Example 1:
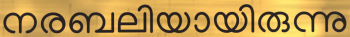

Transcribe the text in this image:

നരബലിയായിരുന്നു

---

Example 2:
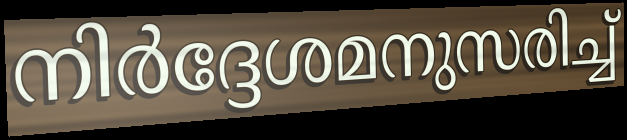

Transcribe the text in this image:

നിർദ്ദേശമനുസരിച്ച്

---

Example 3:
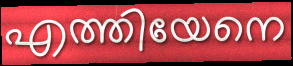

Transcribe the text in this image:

എത്തിയേനെ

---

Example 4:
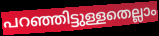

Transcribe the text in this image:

പറഞ്ഞിട്ടുള്ളതെല്ലാം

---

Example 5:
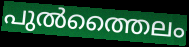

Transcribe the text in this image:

പുൽത്തൈലം